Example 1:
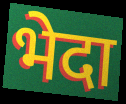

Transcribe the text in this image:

भेदा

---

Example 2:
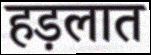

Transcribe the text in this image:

हड़लात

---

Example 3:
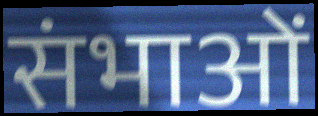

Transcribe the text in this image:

संभाओं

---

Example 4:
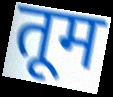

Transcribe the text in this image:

तूम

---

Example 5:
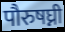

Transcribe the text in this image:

पौरुषघ्नी